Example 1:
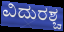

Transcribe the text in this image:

ವಿದುರಶ್ಚ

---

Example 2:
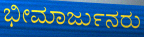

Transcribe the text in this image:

ಭೀಮಾರ್ಜುನರು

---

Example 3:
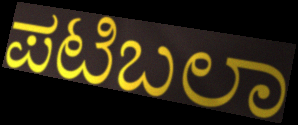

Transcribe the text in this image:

ಪಟಿಬಲಾ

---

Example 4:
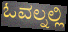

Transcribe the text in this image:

ಓವಲ್ನಲ್ಲಿ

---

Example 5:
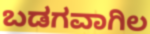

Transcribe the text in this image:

ಬಡಗವಾಗಿಲ